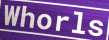
Whorls